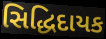
સિદ્ધિદાયક